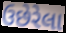
ઉછેરેલા